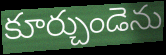
కూర్చుండెను